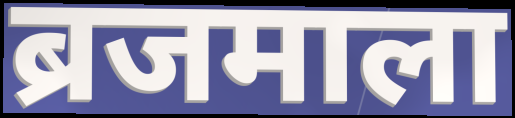
ब्रजमाला